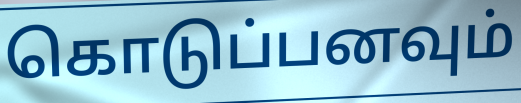
கொடுப்பனவும்